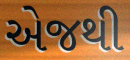
એજથી